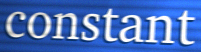
constant